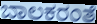
ಬಾಲಕರಂತೆ